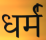
धर्म॑